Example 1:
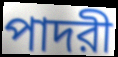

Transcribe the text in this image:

পাদরী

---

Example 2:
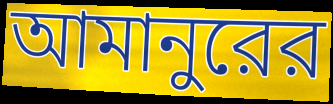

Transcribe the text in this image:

আমানুরের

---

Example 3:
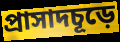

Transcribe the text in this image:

প্রাসাদচূড়ে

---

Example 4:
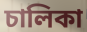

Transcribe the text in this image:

চালিকা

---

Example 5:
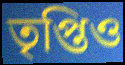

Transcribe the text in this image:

তৃপ্তিও